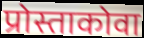
प्रोस्ताकोवा